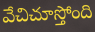
వేచిచూస్తోంది